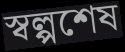
স্বল্পশেষ